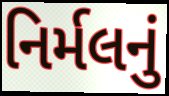
નિર્મલનું